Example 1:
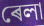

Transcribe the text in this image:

ৰেলা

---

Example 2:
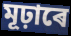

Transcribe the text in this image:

মূঢ়াৰে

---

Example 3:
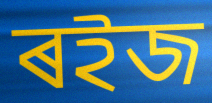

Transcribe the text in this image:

ৰইজ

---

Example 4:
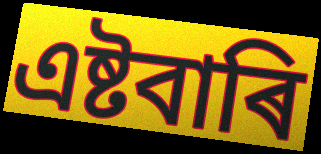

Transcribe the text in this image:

এষ্টবাৰি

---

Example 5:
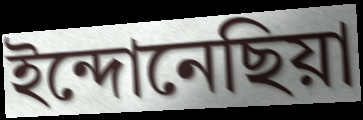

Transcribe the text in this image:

ইন্দোনেছিয়া